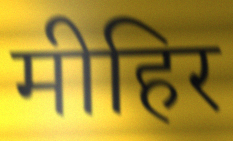
मीहिर